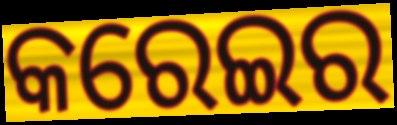
କରେଇର